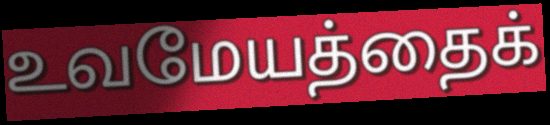
உவமேயத்தைக்